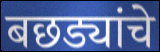
बछड्यांचे